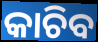
କାଚିବ